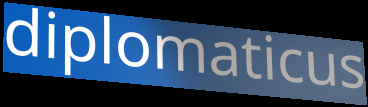
diplomaticus